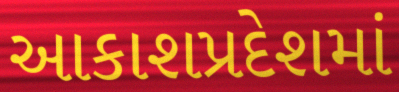
આકાશપ્રદેશમાં